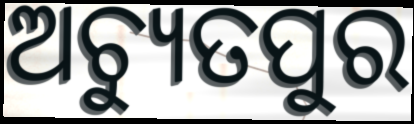
ଅଚ୍ୟୁତପୁର